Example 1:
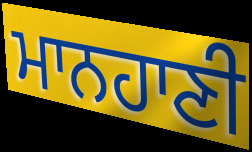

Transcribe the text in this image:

ਮਾਨਹਾਣੀ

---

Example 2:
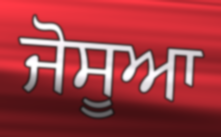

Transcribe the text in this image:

ਜੋਸੂਆ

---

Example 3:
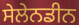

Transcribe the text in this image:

ਸੇਲੇਨਡੀਨ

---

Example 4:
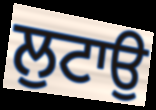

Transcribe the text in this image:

ਲੁਟਾਉ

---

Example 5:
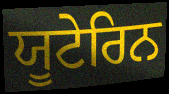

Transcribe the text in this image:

ਯੂਟੇਰਿਨ